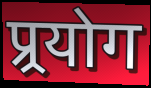
प्र्रयोग